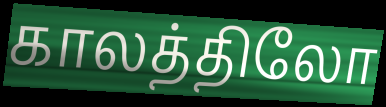
காலத்திலோ